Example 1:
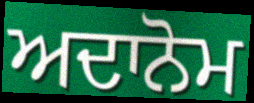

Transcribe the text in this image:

ਅਦਾਨੋਮ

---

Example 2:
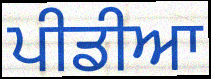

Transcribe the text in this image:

ਪੀਡੀਆ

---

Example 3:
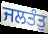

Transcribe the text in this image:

ਜਲਤੰਤੁ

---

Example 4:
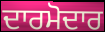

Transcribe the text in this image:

ਦਾਰਮੋਦਾਰ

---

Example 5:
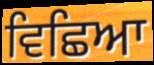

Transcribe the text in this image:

ਵਿਛਿਆ